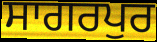
ਸਾਗਰਪੁਰ